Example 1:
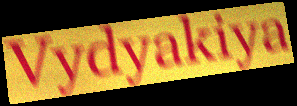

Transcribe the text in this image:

Vydyakiya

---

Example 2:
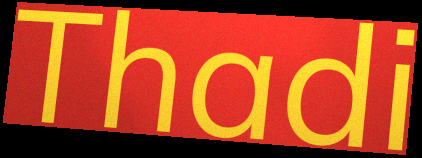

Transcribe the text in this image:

Thadi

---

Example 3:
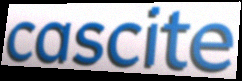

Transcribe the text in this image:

cascite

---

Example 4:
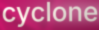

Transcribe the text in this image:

cyclone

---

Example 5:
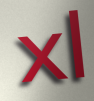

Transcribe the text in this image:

xl